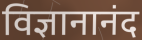
विज्ञानानंद